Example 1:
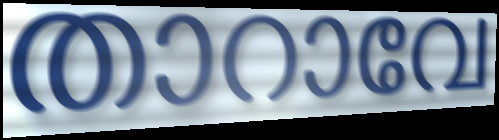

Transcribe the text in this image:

താറാവേ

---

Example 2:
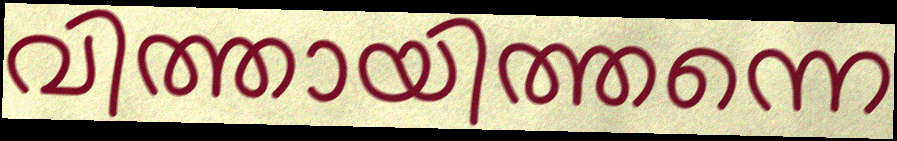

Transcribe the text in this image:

വിത്തായിത്തന്നെ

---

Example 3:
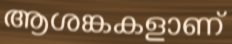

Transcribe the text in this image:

ആശങ്കകളാണ്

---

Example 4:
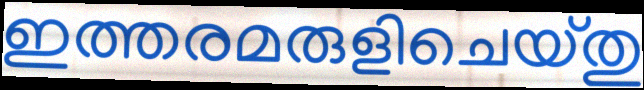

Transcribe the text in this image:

ഇത്തരമരുളിചെയ്തു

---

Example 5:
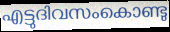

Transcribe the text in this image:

എട്ടുദിവസംകൊണ്ടു